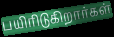
பயிரிடுகிறார்கள்